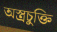
অস্ত্রচুক্তি